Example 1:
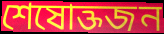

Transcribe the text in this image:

শেষোক্তজন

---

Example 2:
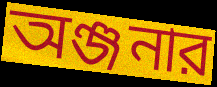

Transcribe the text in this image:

অঞ্জনার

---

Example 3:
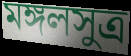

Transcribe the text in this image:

মঙ্গলসুত্র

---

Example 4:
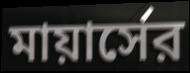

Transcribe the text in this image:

মায়ার্সের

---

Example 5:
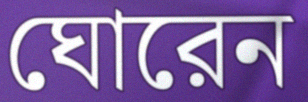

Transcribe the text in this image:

ঘোরেন